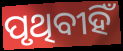
ପୃଥିବୀହିଁ